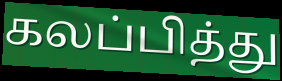
கலப்பித்து